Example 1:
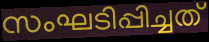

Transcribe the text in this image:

സംഘടിപ്പിച്ചത്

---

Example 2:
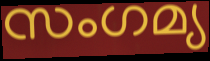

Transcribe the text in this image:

സംഗമ്യ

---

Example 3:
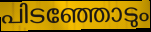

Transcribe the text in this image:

പിടഞ്ഞോടും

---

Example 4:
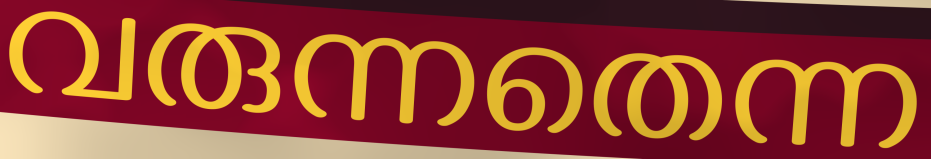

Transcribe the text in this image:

വരുന്നതെന്ന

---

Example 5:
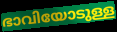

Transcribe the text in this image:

ഭാവിയോടുള്ള